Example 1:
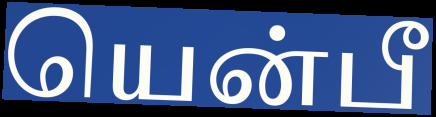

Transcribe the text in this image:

யென்பீ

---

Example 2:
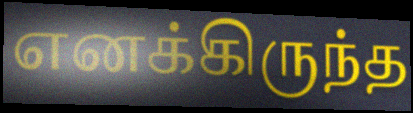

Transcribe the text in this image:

எனக்கிருந்த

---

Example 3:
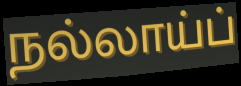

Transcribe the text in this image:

நல்லாய்ப்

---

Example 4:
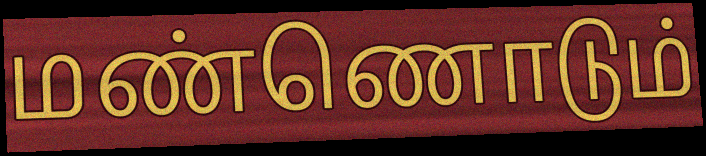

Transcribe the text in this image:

மண்ணொடும்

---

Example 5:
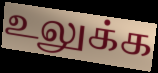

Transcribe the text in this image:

உலுக்க